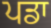
ਪਡਾ